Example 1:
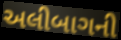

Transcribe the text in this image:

અલીબાગની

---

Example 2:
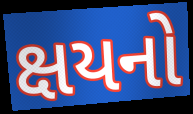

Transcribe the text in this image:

ક્ષયનો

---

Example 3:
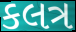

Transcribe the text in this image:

કલત્ર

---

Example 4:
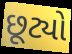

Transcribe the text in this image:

છૂટ્યો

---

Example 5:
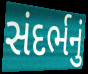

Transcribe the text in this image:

સંદર્ભનું